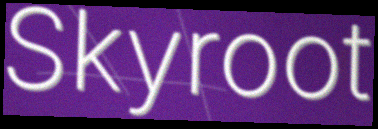
Skyroot